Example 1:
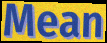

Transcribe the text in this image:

Mean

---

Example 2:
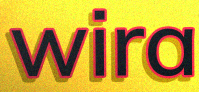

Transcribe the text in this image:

wira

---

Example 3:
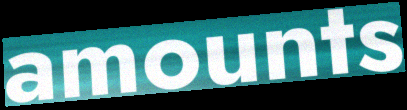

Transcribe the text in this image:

amounts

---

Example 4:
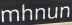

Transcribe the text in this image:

mhnun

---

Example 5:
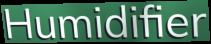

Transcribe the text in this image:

Humidifier